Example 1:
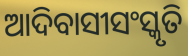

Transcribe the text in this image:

ଆଦିବାସୀସଂସ୍କୃତି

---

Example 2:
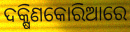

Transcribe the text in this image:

ଦକ୍ଷିଣକୋରିଆରେ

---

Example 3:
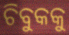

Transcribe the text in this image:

ଚିବୁକକୁ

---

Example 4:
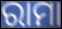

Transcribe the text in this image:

ରାମା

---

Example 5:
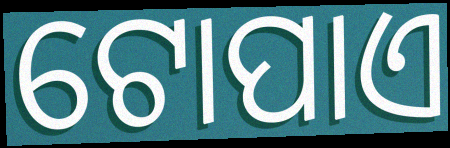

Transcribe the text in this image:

ଟୋପାଏ